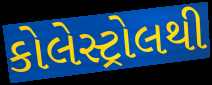
કોલેસ્ટ્રોલથી